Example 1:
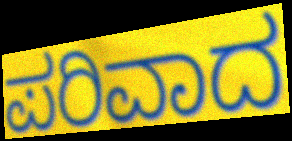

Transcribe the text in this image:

ಪರಿವಾದ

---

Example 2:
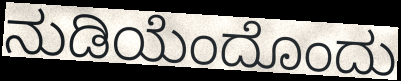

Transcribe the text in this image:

ನುಡಿಯೆಂದೊಂದು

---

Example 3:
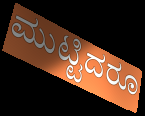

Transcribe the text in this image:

ಮುಟ್ಟಿದರೂ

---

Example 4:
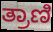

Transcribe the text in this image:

ತ್ರಾಣಿ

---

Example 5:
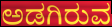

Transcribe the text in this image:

ಅಡಗಿರುವ